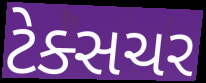
ટેક્સચર